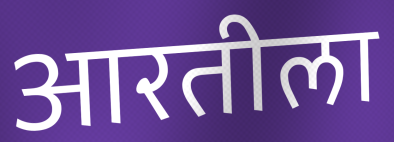
आरतीला